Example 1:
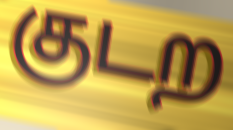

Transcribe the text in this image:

குடற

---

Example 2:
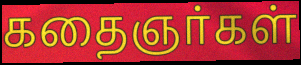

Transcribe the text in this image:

கதைஞர்கள்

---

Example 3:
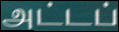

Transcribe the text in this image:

அட்டப்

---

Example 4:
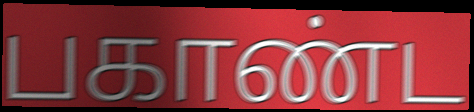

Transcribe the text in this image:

பகாண்ட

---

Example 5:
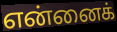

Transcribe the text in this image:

என்னைக்